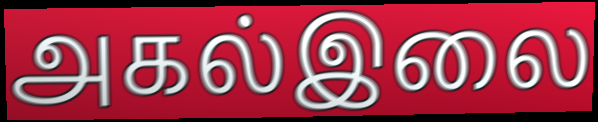
அகல்இலை